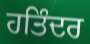
ਹਤਿੰਦਰ